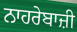
ਨਾਹਰੇਬਾਜ਼ੀ